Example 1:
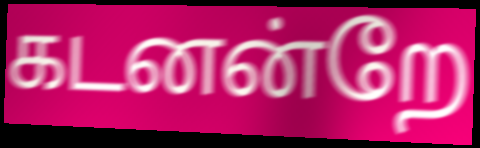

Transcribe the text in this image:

கடனன்றே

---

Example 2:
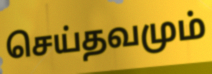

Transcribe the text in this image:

செய்தவமும்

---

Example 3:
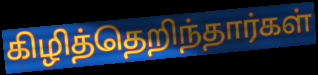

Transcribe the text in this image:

கிழித்தெறிந்தார்கள்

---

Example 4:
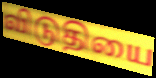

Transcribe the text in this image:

விடுதியை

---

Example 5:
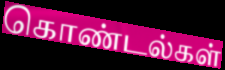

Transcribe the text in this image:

கொண்டல்கள்